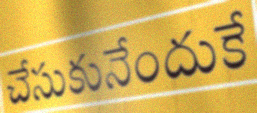
చేసుకునేందుకే